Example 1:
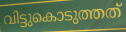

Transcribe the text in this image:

വിട്ടുകൊടുത്തത്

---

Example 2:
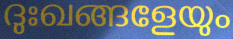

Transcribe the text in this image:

ദുഃഖങ്ങളേയും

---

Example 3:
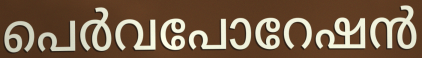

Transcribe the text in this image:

പെർവപോറേഷൻ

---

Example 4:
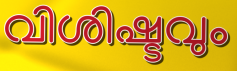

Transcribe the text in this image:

വിശിഷ്ടവും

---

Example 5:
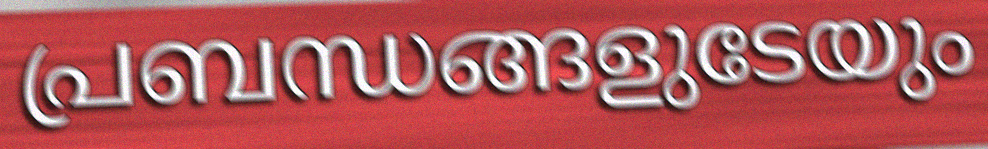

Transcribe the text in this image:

പ്രബന്ധങ്ങളുടേയും